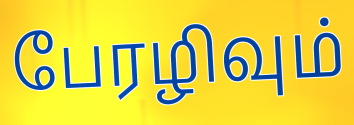
பேரழிவும்